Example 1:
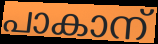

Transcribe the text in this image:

പാകാന്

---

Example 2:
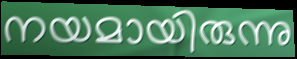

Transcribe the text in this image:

നയമായിരുന്നു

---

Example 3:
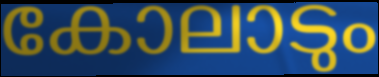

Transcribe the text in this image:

കോലാടും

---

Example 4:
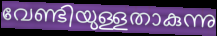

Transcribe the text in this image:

വേണ്ടിയുള്ളതാകുന്നു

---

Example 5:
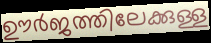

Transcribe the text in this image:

ഊർജത്തിലേക്കുള്ള